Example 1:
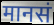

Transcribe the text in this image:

मानसं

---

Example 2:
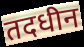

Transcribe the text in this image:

तदधीन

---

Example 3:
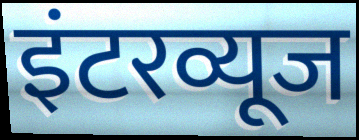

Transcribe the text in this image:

इंटरव्यूज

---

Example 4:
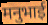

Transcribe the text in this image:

मनुभाई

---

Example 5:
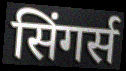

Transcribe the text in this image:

सिंगर्स